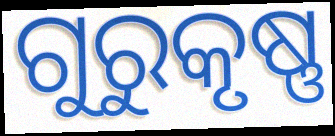
ଗୁରୁକୃଷ୍ଣ